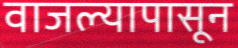
वाजल्यापासून